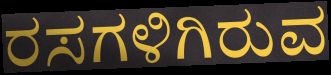
ರಸಗಳಿಗಿರುವ